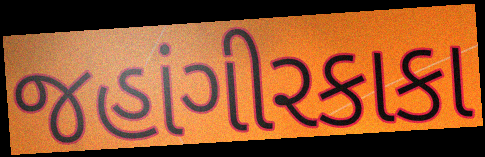
જહાંગીરકાકા